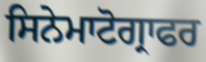
ਸਿਨੇਮਾਟੋਗ੍ਰਾਫਰ